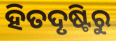
ହିତଦୃଷ୍ଟିରୁ